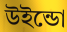
উইন্ডো